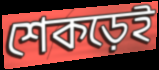
শেকড়েই